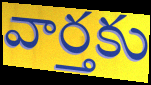
వార్తకు